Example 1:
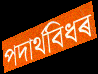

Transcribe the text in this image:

পদাৰ্থবিধৰ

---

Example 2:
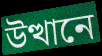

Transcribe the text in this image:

উত্থানে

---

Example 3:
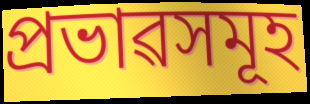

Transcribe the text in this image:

প্ৰভাৱসমূহ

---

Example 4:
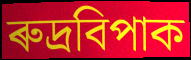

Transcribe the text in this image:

ৰুদ্ৰবিপাক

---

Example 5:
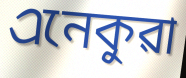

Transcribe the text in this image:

এনেকুৱা